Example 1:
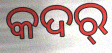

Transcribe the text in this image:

କଦର୍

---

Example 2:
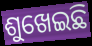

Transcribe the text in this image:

ଶୁଖେଇଛି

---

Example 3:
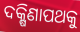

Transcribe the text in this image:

ଦକ୍ଷିଣାପଥକୁ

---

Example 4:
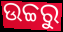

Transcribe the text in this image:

ଉଚ୍ଚରୁ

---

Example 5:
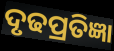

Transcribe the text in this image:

ଦୃଢପ୍ରତିଜ୍ଞା